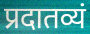
प्रदातव्यं